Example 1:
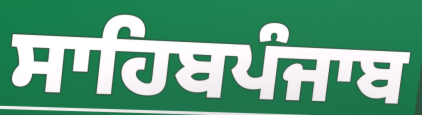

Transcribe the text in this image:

ਸਾਹਿਬਪੰਜਾਬ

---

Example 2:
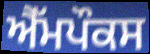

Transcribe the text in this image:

ਐੱਮਪੌਕਸ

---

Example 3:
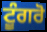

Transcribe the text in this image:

ਟੂੰਗਰੋ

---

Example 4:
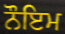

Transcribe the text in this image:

ਨੌਇਮ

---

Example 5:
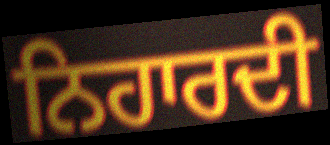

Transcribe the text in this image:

ਨਿਹਾਰਦੀ